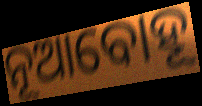
ନୂଆବୋହୂ